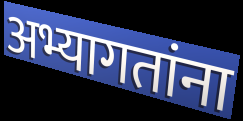
अभ्यागतांना